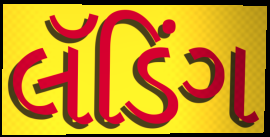
લૅડિંગ